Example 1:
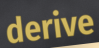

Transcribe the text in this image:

derive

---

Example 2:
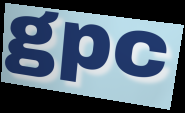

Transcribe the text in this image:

gpc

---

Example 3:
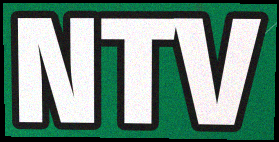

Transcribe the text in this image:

NTV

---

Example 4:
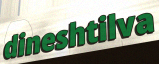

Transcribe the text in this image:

dineshtilva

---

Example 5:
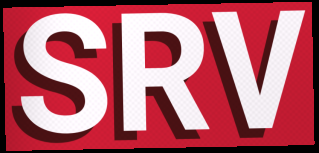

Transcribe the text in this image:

SRV